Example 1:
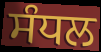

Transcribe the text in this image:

ਸੰਧਲ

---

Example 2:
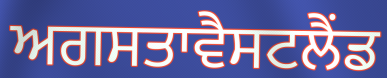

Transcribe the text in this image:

ਅਗਸਤਾਵੈਸਟਲੈਂਡ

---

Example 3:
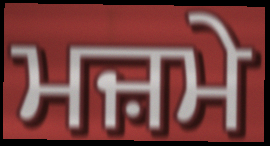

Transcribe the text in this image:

ਮਜ਼ਮੇ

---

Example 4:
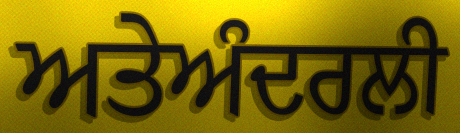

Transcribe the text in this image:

ਅਤੇਅੰਦਰਲੀ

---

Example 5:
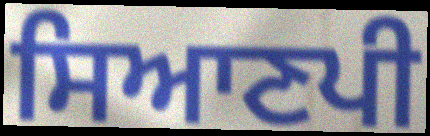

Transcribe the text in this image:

ਸਿਆਣਪੀ